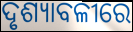
ଦୃଶ୍ୟାବଳୀରେ